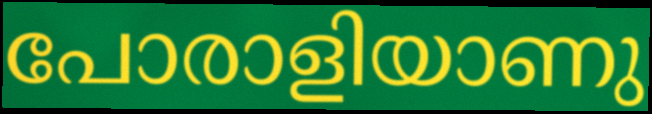
പോരാളിയാണു